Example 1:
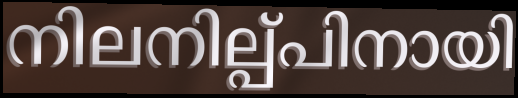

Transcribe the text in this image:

നിലനില്പ്പിനായി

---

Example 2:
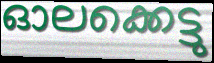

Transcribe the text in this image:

ഓലക്കെട്ടു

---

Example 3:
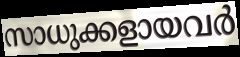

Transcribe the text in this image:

സാധുക്കളായവർ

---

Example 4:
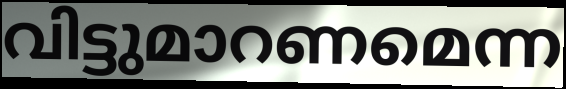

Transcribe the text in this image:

വിട്ടുമാറണമെന്ന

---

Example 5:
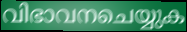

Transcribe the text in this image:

വിഭാവനചെയ്യുക